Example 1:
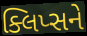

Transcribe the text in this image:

ક્લિપ્સને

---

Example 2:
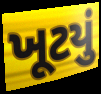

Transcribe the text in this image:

ખૂટયું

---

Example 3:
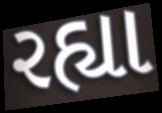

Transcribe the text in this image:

રહ્યા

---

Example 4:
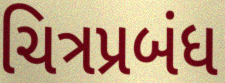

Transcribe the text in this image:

ચિત્રપ્રબંધ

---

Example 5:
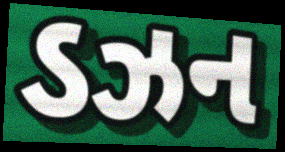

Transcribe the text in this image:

ડઝન